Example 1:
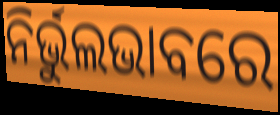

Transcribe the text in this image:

ନିର୍ଭୁଲଭାବରେ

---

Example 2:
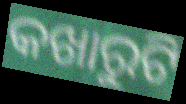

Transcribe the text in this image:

କଖାରୁଟି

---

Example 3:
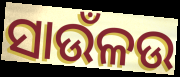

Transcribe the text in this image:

ସାଉଁଳଉ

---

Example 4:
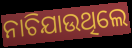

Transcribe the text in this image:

ନାଚିଯାଉଥିଲେ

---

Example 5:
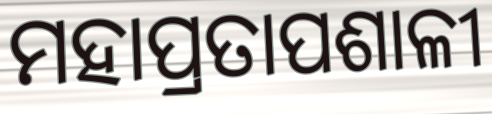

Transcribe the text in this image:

ମହାପ୍ରତାପଶାଳୀ